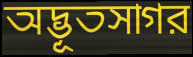
অদ্ভূতসাগর